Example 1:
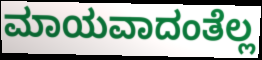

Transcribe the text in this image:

ಮಾಯವಾದಂತೆಲ್ಲ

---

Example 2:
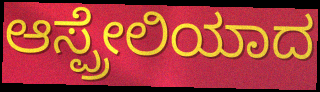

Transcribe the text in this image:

ಆಸ್ಪ್ರೇಲಿಯಾದ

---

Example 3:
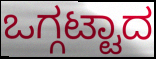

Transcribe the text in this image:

ಒಗ್ಗಟ್ಟಾದ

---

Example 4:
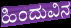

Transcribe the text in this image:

ಹಿಂದುವಿನ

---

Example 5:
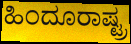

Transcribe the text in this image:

ಹಿಂದೂರಾಷ್ಟ್ರ